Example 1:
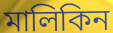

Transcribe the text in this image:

মালিকিন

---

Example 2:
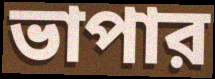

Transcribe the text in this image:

ভাপার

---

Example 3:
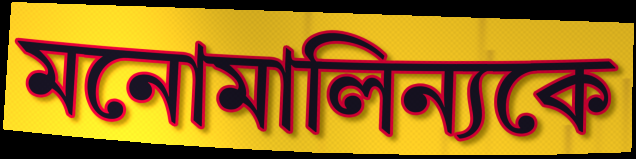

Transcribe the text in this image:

মনোমালিন্যকে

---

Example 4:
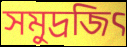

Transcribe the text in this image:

সমুদ্রজিৎ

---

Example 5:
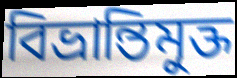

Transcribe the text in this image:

বিভ্রান্তিমুক্ত